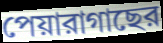
পেয়ারাগাছের